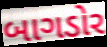
બાગડોર